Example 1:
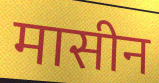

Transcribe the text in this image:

मासीन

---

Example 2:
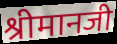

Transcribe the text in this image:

श्रीमानजी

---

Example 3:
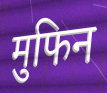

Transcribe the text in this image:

मुफिन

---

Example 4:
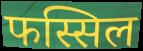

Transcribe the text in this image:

फस्सिल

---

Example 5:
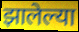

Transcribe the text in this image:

झालेल्या